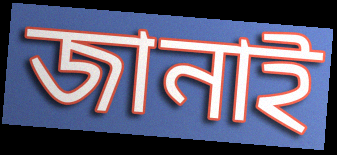
জানাই